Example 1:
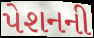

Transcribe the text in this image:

પેશનની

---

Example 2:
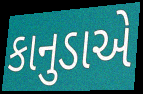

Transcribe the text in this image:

કાનુડાએ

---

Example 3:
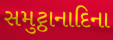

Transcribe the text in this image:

સમુટ્ઠાનાદિના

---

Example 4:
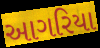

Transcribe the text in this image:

આગરિયા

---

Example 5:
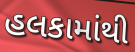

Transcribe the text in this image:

હલકામાંથી